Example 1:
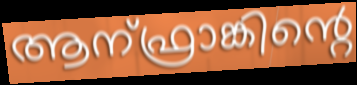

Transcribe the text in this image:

ആന്ഫ്രാങ്കിന്റെ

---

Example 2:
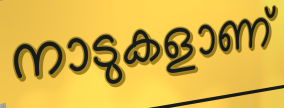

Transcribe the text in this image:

നാടുകളാണ്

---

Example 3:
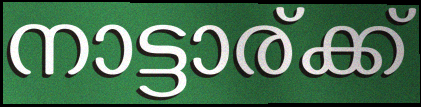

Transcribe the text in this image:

നാട്ടാര്ക്ക്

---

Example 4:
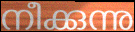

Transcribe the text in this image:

നീക്കുന്നു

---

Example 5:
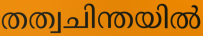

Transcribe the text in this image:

തത്വചിന്തയിൽ